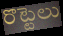
రొట్టెలు